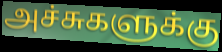
அச்சுகளுக்கு